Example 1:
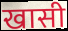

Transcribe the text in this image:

खासी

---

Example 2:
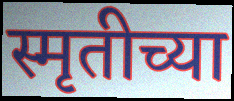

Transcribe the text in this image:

स्मृतीच्या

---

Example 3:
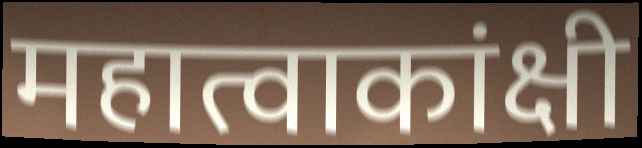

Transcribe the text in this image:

महात्वाकांक्षी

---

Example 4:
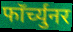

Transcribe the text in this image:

फॉर्च्युनर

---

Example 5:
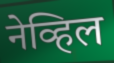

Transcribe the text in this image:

नेव्हिल